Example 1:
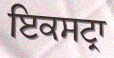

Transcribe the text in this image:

ਇਕਸਟ੍ਰਾ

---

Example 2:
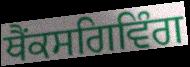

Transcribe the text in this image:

ਥੈਂਕਸਗਿਵਿੰਗ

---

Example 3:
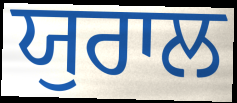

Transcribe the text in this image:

ਯੁਰਾਲ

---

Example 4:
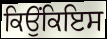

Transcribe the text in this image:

ਕਿਉਂਕਿਇਸ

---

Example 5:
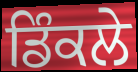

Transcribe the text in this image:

ਡਿੰਕਲੇ